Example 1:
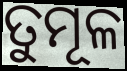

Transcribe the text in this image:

ତୁମୂଳ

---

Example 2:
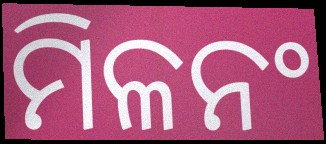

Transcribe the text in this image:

ମିଳନଂ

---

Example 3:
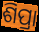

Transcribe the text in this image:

ଶିପ୍ରା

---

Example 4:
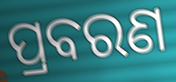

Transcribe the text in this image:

ପ୍ରବରଣ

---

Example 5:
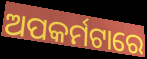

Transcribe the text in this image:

ଅପକର୍ମଟାରେ